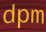
dpm